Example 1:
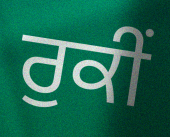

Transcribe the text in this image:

ਰੁਕੀਂ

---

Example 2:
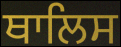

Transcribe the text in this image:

ਥਾਲਿਸ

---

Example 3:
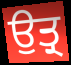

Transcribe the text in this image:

ਉਤ੍ਰ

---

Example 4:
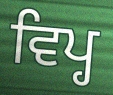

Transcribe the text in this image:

ਵਿਪ੍ਹ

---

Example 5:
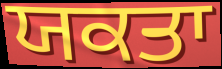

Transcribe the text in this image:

ਯਕਤਾ